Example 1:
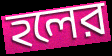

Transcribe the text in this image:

হলের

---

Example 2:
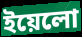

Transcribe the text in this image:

ইয়েলো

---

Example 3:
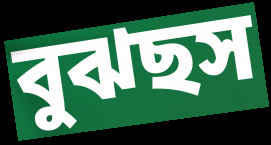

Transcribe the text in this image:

বুঝছস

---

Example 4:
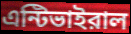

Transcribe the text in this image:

এন্টিভাইরাল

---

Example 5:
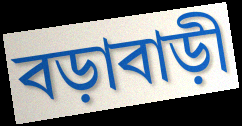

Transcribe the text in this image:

বড়াবাড়ী